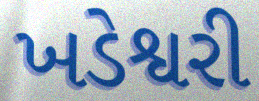
ખડેશ્વરી